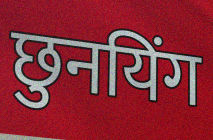
छुनयिंग